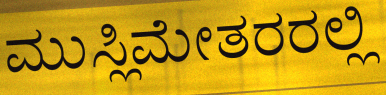
ಮುಸ್ಲಿಮೇತರರಲ್ಲಿ